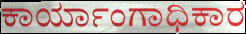
ಕಾರ್ಯಾಂಗಾಧಿಕಾರ